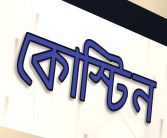
কোস্টিন